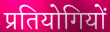
प्रतियोगियों